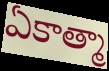
ఏకాత్మా